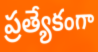
ప్రత్యేకంగా